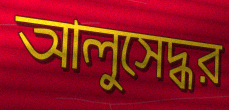
আলুসেদ্ধর